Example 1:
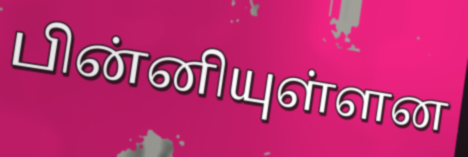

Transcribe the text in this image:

பின்னியுள்ளன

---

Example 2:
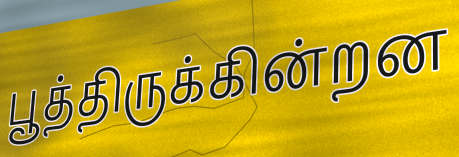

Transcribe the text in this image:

பூத்திருக்கின்றன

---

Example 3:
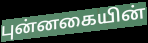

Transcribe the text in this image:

புன்னகையின்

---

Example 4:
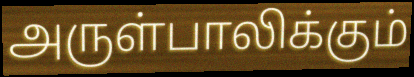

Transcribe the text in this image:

அருள்பாலிக்கும்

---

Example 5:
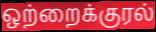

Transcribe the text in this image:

ஒற்றைக்குரல்